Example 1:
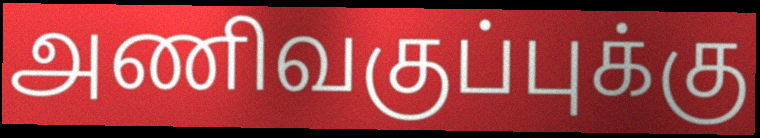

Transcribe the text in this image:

அணிவகுப்புக்கு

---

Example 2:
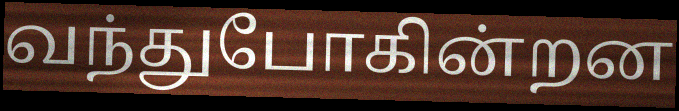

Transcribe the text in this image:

வந்துபோகின்றன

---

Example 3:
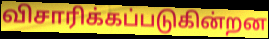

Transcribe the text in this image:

விசாரிக்கப்படுகின்றன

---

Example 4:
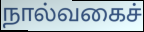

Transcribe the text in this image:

நால்வகைச்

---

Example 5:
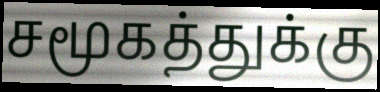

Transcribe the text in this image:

சமூகத்துக்கு